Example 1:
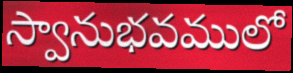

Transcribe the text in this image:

స్వానుభవములో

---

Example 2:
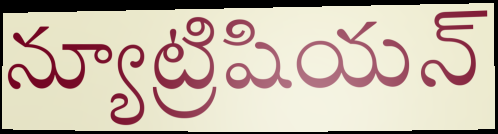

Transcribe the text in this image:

న్యూట్రిషియన్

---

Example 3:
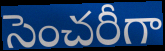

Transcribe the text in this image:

సెంచరీగా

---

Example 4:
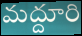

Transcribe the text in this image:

మద్దూరి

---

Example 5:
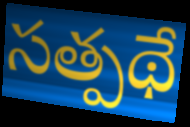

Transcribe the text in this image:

సత్పథే